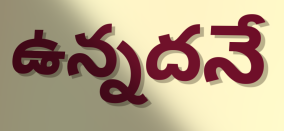
ఉన్నదనే